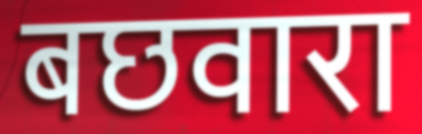
बछवारा